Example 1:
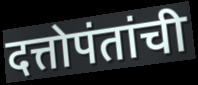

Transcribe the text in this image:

दत्तोपंतांची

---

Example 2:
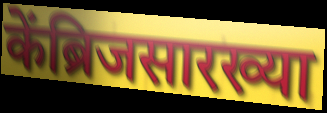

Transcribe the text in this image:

केंब्रिजसारख्या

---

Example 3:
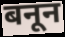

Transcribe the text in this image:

बनून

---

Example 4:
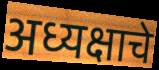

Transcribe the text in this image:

अध्यक्षाचे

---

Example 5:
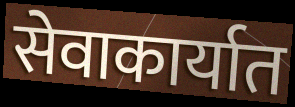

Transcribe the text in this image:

सेवाकार्यात